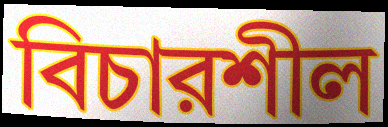
বিচারশীল